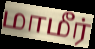
மாமீர்